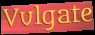
Vulgate